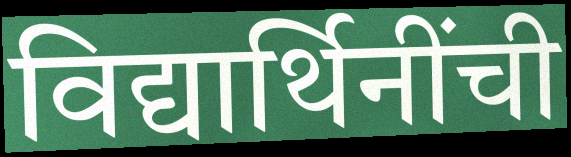
विद्यार्थिनींची